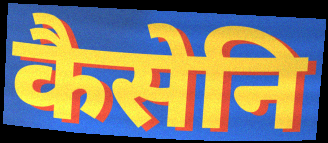
कैसेनि